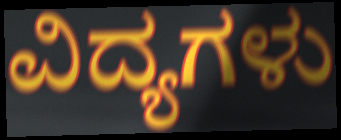
ವಿದ್ಯಗಳು